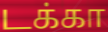
டக்கா